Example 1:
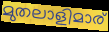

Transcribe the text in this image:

മുതലാളിമാര്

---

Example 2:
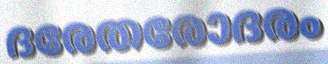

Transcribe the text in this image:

ദരേതരോദരം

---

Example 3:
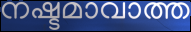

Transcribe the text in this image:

നഷ്ടമാവാത്ത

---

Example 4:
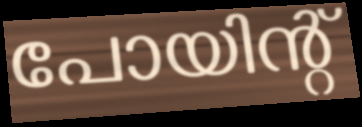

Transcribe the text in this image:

പോയിന്റ്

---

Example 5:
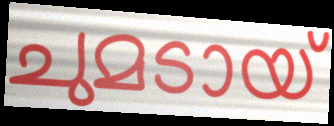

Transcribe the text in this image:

ചുമടായ്